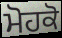
ਮੋਹਕੋ